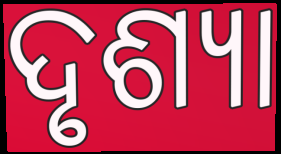
ଦୃଶ୍ୟା